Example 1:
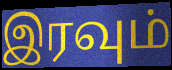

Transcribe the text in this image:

இரவும்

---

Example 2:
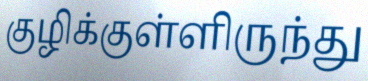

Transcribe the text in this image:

குழிக்குள்ளிருந்து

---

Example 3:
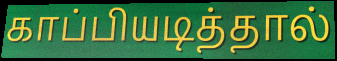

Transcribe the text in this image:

காப்பியடித்தால்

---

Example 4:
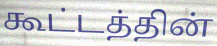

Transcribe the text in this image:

கூட்டத்தின்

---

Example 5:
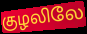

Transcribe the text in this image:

குழலிலே